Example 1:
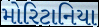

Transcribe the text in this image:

મોરિટાનિયા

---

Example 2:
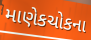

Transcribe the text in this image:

માણેકચોકના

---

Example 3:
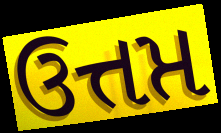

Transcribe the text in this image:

ઉત્તપ્ત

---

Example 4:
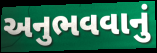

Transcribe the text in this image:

અનુભવવાનું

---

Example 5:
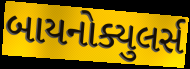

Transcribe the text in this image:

બાયનોક્યુલર્સ